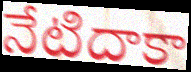
నేటిదాకా